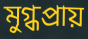
মুগ্ধপ্রায়